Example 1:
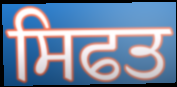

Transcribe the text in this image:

ਸਿਫਤ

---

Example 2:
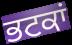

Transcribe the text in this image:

ਭਟਕਾਂ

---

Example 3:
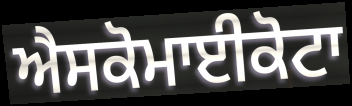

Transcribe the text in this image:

ਐਸਕੋਮਾਈਕੋਟਾ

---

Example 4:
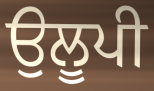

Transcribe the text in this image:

ਉਲੂਪੀ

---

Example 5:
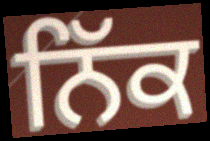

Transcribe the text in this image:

ਨਿੱਕ